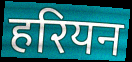
हरियन